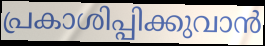
പ്രകാശിപ്പിക്കുവാൻ